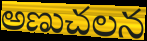
అణుచలన